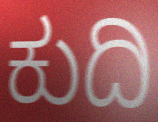
ಕುದಿ